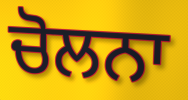
ਚੋਲਨਾ